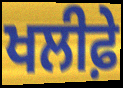
ਖਲੀਫ਼ੇ